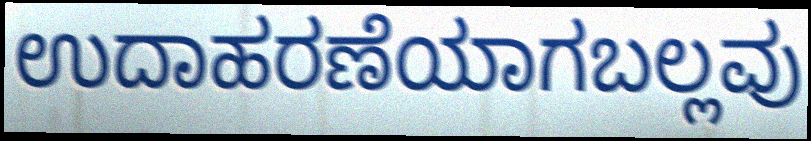
ಉದಾಹರಣೆಯಾಗಬಲ್ಲವು